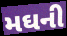
મઘની